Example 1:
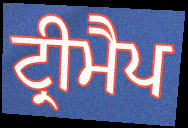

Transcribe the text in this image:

ਟ੍ਰੀਮੈਪ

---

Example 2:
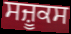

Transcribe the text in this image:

ਸਜ਼ੂਕਸ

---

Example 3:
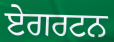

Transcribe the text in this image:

ਏਗਰਟਨ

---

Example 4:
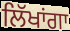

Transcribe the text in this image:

ਲਿੱਖਾਂਗਾ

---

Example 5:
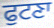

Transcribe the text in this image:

ਫੁਟਣਾ